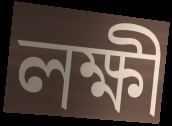
লক্ষী